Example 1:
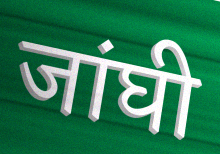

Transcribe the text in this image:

जांघी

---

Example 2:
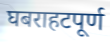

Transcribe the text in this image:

घबराहटपूर्ण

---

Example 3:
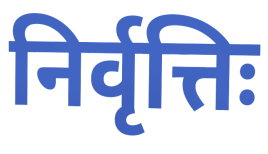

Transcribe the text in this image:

निर्वृत्तिः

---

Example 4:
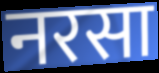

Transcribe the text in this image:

नरसा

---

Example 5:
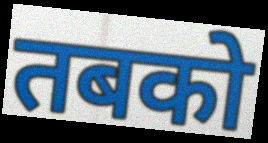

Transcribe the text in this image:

तबको